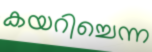
കയറിച്ചെന്ന